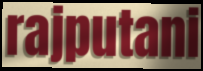
rajputani